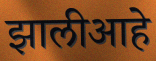
झालीआहे